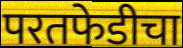
परतफेडीचा